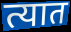
त्यात